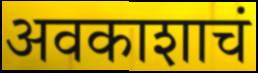
अवकाशाचं